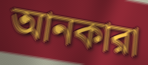
আনকারা